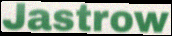
Jastrow